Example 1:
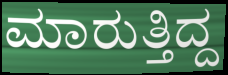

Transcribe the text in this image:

ಮಾರುತ್ತಿದ್ದ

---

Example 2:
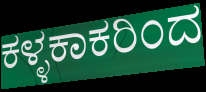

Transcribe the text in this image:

ಕಳ್ಳಕಾಕರಿಂದ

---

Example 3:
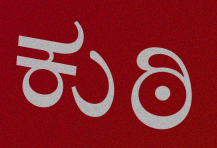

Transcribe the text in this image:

ಕುಠಿ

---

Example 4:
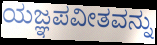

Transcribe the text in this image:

ಯಜ್ಞಪವೀತವನ್ನು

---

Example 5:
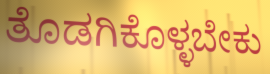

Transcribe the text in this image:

ತೊಡಗಿಕೊಳ್ಳಬೇಕು